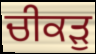
ਚੀਕੜੁ